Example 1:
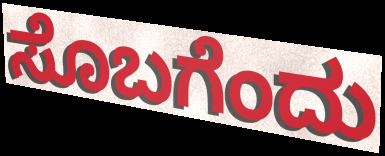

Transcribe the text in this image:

ಸೊಬಗೆಂದು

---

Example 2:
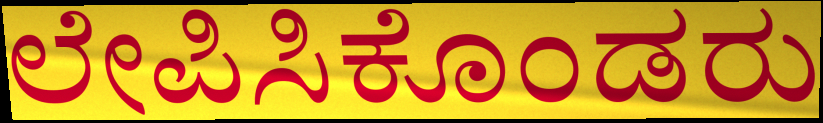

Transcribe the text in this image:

ಲೇಪಿಸಿಕೊಂಡರು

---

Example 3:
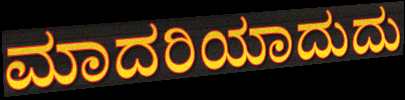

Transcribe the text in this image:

ಮಾದರಿಯಾದುದು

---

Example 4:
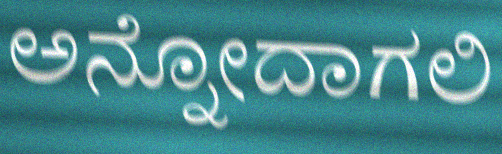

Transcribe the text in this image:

ಅನ್ನೋದಾಗಲಿ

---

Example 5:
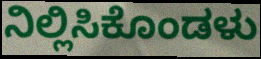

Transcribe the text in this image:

ನಿಲ್ಲಿಸಿಕೊಂಡಳು